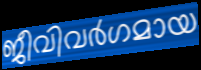
ജീവിവർഗമായ